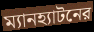
ম্যানহ্যাটনের